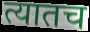
त्यातच